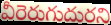
వీరెరుగుదురని